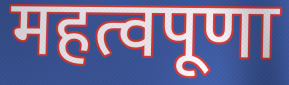
महत्वपूणा